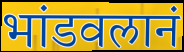
भांडवलानं